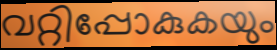
വറ്റിപ്പോകുകയും